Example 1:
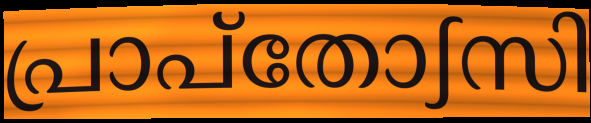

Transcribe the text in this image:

പ്രാപ്തോഽസി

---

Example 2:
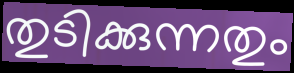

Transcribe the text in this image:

തുടിക്കുന്നതും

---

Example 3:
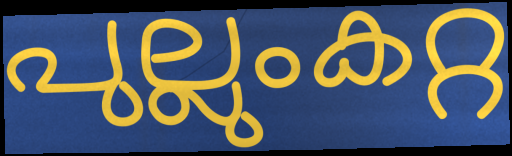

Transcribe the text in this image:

പുല്ലുംകറ്റ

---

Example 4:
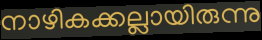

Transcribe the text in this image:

നാഴികക്കല്ലായിരുന്നു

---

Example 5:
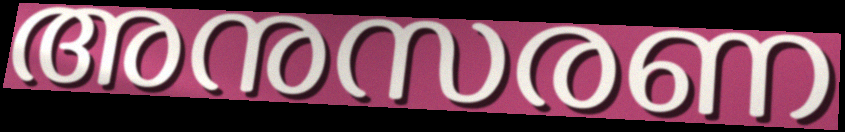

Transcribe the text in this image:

അനുസരണ